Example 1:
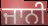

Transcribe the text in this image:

ਜਾਨੀ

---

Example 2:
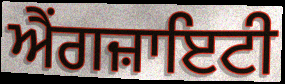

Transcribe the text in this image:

ਐਂਗਜ਼ਾਇਟੀ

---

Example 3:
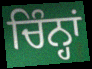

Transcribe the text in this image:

ਚਿੰਨ੍ਹਾਂ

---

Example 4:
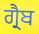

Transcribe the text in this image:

ਗ੍ਰੈਬ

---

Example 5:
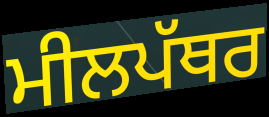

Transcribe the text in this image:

ਮੀਲਪੱਥਰ